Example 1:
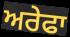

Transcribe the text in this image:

ਅਰੇਫਾ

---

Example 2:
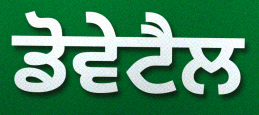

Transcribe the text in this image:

ਡੋਵੇਟੈਲ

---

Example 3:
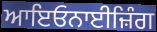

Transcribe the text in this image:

ਆਇਓਨਾਈਜ਼ਿੰਗ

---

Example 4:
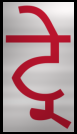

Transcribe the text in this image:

ਟ੍ਰੇ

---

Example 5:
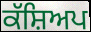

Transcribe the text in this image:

ਕੱਸ਼ਿਅਪ